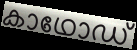
കാഥോഡ്